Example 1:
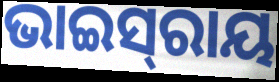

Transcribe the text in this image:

ଭାଇସ୍‍ରାୟ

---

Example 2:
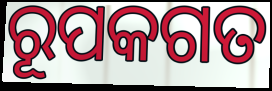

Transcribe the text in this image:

ରୂପକଗତ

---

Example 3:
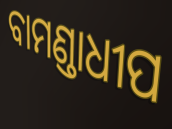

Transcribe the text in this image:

ବାମଣ୍ଡାଧୀପ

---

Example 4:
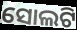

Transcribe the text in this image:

ସୋଲଟି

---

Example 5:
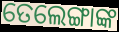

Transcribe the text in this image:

ତେଲେଙ୍ଗାଙ୍କ